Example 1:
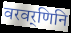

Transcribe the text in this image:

वरवर्णिनि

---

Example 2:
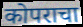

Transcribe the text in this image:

कोपराचा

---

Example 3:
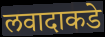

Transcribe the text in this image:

लवादाकडे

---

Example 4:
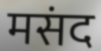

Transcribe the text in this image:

मसंद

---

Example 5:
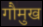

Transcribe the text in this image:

गौमुख